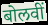
बोलवीं